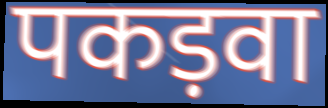
पकड़वा